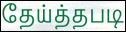
தேய்த்தபடி